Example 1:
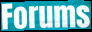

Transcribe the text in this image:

Forums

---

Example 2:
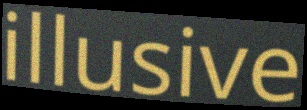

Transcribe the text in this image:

illusive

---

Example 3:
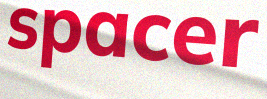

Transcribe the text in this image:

spacer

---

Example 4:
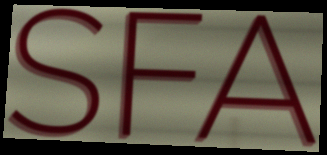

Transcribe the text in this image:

SFA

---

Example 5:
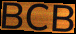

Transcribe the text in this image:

BCB